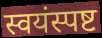
स्वयंस्पष्ट